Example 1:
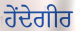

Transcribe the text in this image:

ਹੇਂਦੇਗੀਰ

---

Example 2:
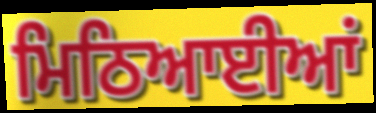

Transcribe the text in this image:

ਮਿਠਿਆਈਆਂ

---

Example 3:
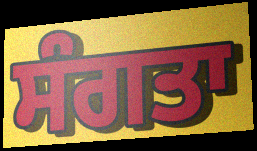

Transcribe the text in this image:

ਸੰਗਤਾ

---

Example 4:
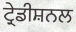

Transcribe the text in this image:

ਟ੍ਰੇਡੀਸ਼ਨਲ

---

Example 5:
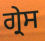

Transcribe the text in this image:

ਗ੍ਰੇਸ